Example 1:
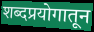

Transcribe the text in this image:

शब्दप्रयोगातून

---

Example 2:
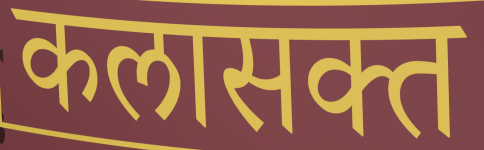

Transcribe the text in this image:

कलासक्त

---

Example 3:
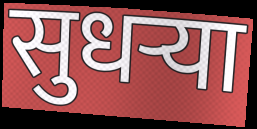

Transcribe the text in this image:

सुधर्‍या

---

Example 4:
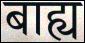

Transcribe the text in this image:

बाह्य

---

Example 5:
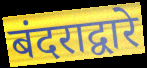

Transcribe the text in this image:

बंदराद्वारे